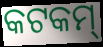
କଟକମ୍